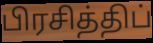
பிரசித்திப்